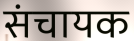
संचायक